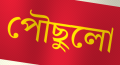
পৌছুলো